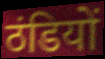
ठंडियों